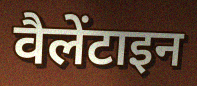
वैलेंटाइन